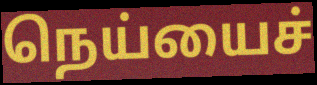
நெய்யைச்